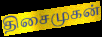
திசைமுகன்